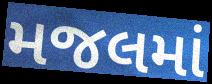
મજલમાં